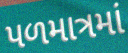
પળમાત્રમાં